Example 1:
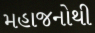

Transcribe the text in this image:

મહાજનોથી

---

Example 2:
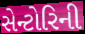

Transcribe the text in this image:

સેન્ટોરિની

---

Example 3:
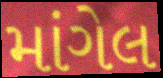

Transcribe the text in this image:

માંગેલ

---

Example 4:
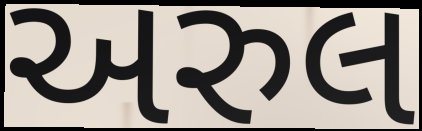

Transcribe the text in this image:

અરુલ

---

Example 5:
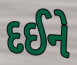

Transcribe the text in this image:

દઈને